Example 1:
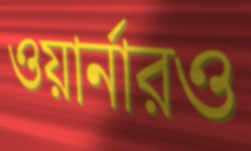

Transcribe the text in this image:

ওয়ার্নারও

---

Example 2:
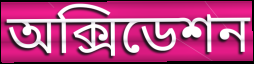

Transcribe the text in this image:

অক্সিডেশন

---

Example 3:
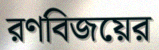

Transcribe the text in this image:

রণবিজয়ের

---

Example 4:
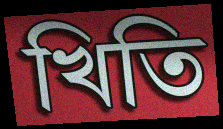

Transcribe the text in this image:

খিতি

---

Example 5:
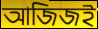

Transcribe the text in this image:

আজিজই